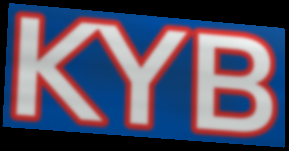
KYB